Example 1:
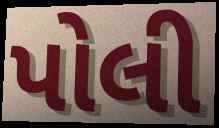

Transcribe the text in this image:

પોલી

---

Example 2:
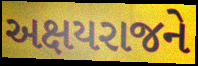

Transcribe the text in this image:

અક્ષયરાજને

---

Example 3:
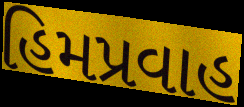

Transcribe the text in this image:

હિમપ્રવાહ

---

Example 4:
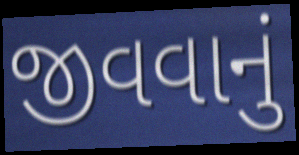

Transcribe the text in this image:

જીવવાનું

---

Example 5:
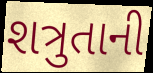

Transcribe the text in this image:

શત્રુતાની